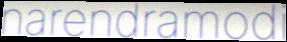
narendramodi